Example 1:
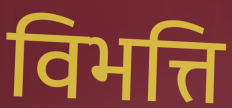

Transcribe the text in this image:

विभत्ति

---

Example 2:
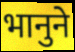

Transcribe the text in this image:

भानुने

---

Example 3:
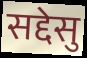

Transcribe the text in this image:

सद्देसु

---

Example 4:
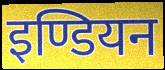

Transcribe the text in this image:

इण्डियन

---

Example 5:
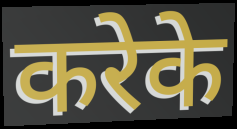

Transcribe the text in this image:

करेके